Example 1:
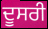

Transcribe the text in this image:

ਦੂਸਰੀ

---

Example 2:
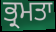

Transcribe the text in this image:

ਭ੍ਰਮਤਾ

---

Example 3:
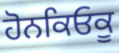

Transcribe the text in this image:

ਹੋਨਕਿਓਕੂ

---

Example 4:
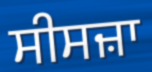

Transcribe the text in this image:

ਸੀਸਜ਼ਾ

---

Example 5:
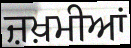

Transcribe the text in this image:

ਜ਼ਖ਼ਮੀਆਂ